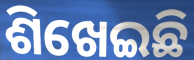
ଶିଖେଇଛି